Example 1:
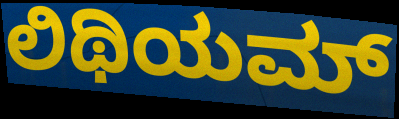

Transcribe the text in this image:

ಲಿಥಿಯಮ್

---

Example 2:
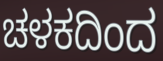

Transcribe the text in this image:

ಚಳಕದಿಂದ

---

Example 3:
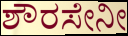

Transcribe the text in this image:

ಶೌರಸೇನೀ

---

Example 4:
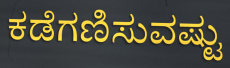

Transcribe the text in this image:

ಕಡೆಗಣಿಸುವಷ್ಟು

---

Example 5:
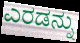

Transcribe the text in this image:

ಎರಡನ್ನು